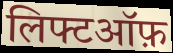
लिफ्टऑफ़